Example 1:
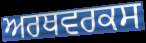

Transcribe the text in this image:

ਅਰਥਵਰਕਸ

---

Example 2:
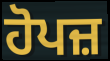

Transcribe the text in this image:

ਹੋਪਜ਼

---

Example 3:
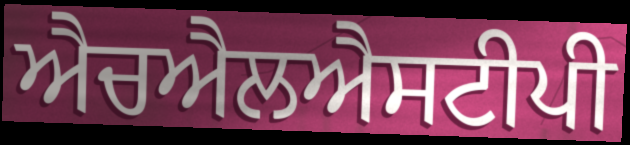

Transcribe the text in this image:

ਐਚਐਲਐਸਟੀਪੀ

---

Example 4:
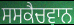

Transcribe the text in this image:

ਸਸਕੈਚਵਾਨ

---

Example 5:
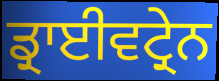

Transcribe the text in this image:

ਡ੍ਰਾਈਵਟ੍ਰੇਨ